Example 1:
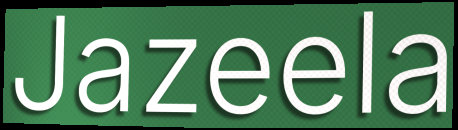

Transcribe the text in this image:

Jazeela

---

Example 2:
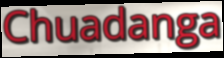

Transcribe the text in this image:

Chuadanga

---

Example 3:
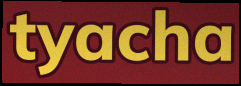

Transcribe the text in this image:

tyacha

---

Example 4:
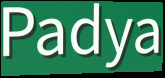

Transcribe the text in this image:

Padya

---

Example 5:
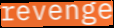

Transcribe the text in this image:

revenge